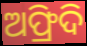
ଅଫ୍ରିଦି